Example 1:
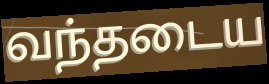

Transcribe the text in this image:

வந்தடைய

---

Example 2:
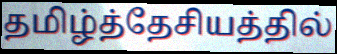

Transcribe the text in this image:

தமிழ்த்தேசியத்தில்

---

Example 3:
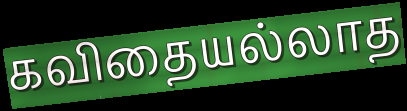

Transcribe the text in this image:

கவிதையல்லாத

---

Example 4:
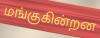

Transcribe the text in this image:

மங்குகின்றன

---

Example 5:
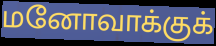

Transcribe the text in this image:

மனோவாக்குக்